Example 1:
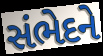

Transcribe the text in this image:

સંભેદને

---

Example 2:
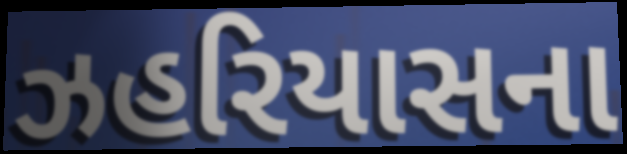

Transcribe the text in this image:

ઝહરિયાસના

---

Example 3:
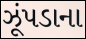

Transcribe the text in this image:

ઝૂંપડાના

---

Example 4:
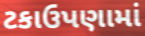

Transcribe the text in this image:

ટકાઉપણામાં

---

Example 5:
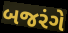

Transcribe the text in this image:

બજરંગે